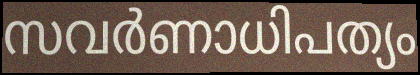
സവർണാധിപത്യം